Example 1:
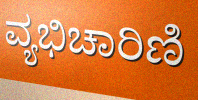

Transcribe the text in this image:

ವ್ಯಭಿಚಾರಿಣಿ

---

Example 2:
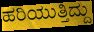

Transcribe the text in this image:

ಹರಿಯುತ್ತಿದ್ದು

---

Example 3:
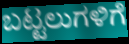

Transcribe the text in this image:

ಬಟ್ಟಲುಗಳಿಗೆ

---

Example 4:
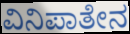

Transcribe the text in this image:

ವಿನಿಪಾತೇನ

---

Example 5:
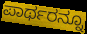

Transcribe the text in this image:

ಪಾರ್ಥರನ್ನೂ